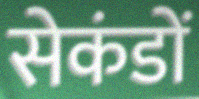
सेकंडों